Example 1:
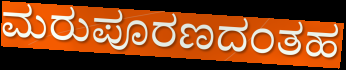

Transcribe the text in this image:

ಮರುಪೂರಣದಂತಹ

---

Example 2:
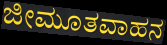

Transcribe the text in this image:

ಜೀಮೂತವಾಹನ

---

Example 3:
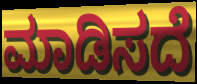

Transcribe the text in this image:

ಮಾಡಿಸದೆ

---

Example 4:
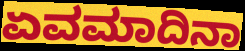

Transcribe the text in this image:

ಏವಮಾದಿನಾ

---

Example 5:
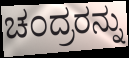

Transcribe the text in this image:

ಚಂದ್ರರನ್ನು